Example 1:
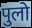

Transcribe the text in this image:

पुलो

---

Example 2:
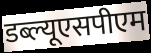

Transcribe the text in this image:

डब्ल्यूएसपीएम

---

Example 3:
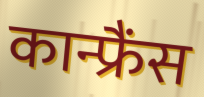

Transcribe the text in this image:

कान्फ्रैंस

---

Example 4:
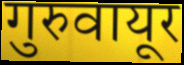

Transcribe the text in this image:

गुरुवायूर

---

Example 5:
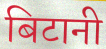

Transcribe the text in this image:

बिटानी